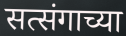
सत्संगाच्या